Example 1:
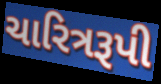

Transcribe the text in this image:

ચારિત્રરૂપી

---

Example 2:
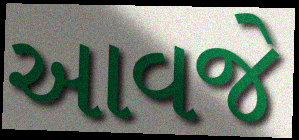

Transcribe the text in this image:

આવજે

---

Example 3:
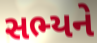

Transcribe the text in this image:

સભ્યને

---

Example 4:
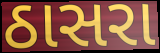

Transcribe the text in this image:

ઠાસરા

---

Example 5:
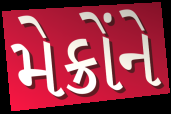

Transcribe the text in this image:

મેક્રોંને